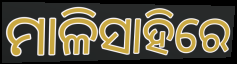
ମାଳିସାହିରେ